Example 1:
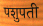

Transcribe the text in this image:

पशुपती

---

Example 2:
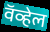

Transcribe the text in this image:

वॅव्हेल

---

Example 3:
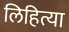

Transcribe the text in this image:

लिहित्या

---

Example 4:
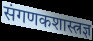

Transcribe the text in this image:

संगणकशास्त्रज्ञ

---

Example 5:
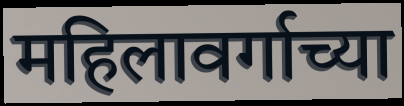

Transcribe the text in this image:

महिलावर्गाच्या